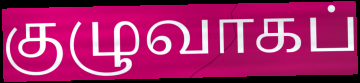
குழுவாகப்